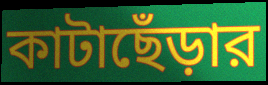
কাটাছেঁড়ার